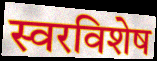
स्वरविशेष